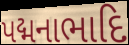
પદ્મનાભાદિ